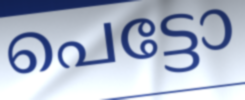
പെട്ടോ